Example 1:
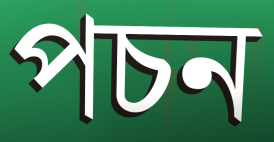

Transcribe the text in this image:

পচন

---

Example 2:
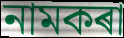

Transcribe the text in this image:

নামকৰা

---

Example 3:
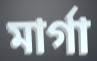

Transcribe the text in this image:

মাৰ্গা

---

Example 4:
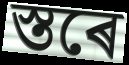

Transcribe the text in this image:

স্তৰে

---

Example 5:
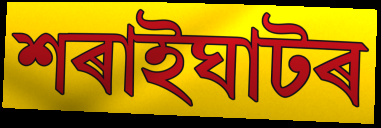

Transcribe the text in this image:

শৰাইঘাটৰ